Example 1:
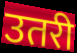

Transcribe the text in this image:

उतरी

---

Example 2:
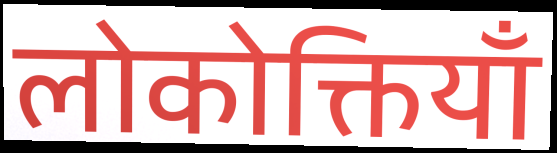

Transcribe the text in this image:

लोकोक्तियाँ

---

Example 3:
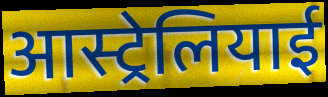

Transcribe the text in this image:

आस्ट्रेलियाई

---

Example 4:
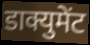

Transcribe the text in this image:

डाक्युमेंट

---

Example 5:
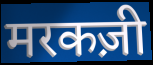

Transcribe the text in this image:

मरकज़ी